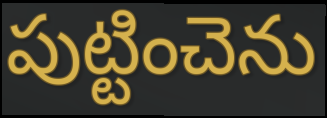
పుట్టించెను